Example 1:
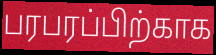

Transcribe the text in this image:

பரபரப்பிற்காக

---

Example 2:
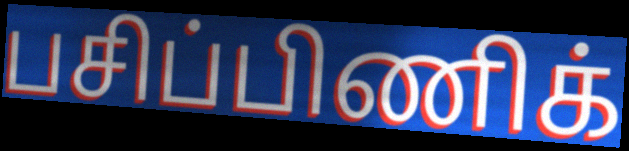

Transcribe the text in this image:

பசிப்பிணிக்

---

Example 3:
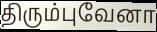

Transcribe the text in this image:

திரும்புவேனா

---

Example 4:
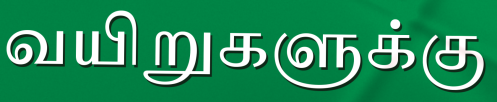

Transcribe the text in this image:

வயிறுகளுக்கு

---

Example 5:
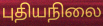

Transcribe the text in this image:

புதியநிலை